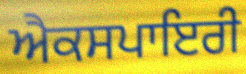
ਐਕਸਪਾਇਰੀ